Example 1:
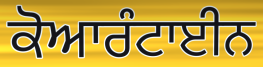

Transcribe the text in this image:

ਕੋਆਰੰਟਾਈਨ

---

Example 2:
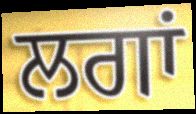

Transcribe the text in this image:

ਲਗਾਂ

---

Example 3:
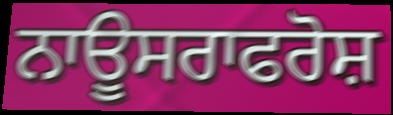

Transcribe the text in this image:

ਨਾਊਸਰਾਫਰੋਸ਼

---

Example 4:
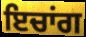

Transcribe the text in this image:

ਇਚਾਂਗ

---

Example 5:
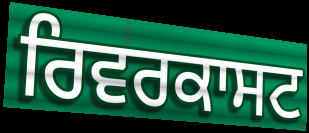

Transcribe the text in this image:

ਰਿਵਰਕਾਸਟ